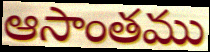
ఆసాంతము